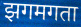
झगमगता